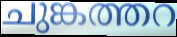
ചുങ്കത്തറ